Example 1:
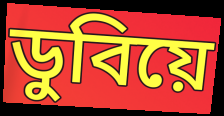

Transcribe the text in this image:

ডুবিয়ে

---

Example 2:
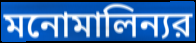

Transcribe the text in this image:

মনোমালিন্যর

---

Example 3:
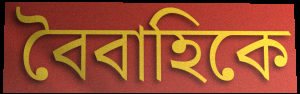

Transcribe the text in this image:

বৈবাহিকে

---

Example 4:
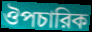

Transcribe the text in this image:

ঔপচারিক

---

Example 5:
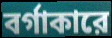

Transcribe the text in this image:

বর্গাকারে